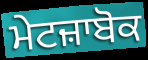
ਮੇਟਜ਼ਾਬੋਕ